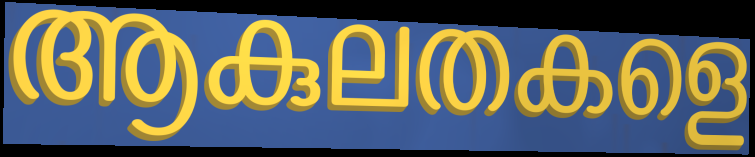
ആകുലതകളെ